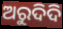
ଅରୁଦିଦି